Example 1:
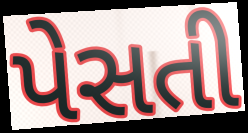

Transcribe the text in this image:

પેસતી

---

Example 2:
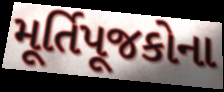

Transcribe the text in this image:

મૂર્તિપૂજકોના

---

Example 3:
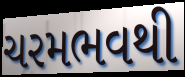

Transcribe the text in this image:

ચરમભવથી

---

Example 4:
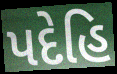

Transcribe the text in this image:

પદેહિ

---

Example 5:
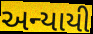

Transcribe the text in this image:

અન્યાયી